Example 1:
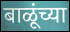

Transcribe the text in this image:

बाळूंच्या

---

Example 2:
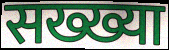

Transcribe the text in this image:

सख्ख्या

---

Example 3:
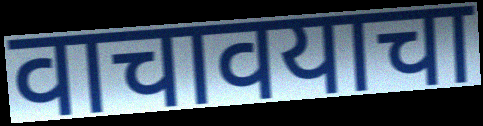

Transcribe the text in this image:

वाचावयाचा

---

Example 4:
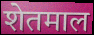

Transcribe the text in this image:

शेतमाल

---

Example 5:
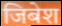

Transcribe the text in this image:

जिबेश